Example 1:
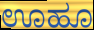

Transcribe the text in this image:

ಊಹೂ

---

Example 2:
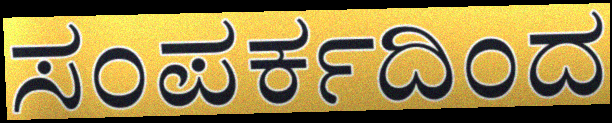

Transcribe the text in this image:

ಸಂಪರ್ಕದಿಂದ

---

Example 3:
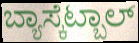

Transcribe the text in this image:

ಬ್ಯಾಸ್ಕೆಟ್ಬಾಲ್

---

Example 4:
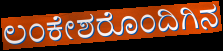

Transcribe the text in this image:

ಲಂಕೇಶರೊಂದಿಗಿನ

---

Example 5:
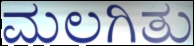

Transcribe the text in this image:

ಮಲಗಿತು